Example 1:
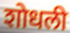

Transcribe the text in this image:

शोधली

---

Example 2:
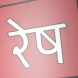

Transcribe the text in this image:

रेष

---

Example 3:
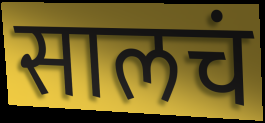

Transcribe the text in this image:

सालचं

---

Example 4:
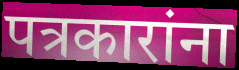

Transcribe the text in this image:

पत्रकारांना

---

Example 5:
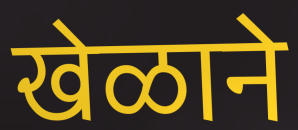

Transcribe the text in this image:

खेळाने